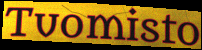
Tuomisto